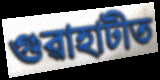
গুৱাহাটীত